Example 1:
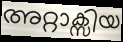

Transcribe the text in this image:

അറ്റാക്സിയ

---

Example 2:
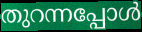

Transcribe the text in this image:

തുറന്നപ്പോൾ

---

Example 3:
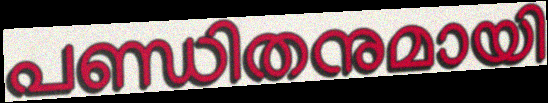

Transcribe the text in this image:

പണ്ഡിതനുമായി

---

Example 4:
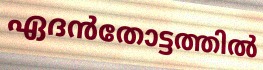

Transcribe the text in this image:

ഏദൻതോട്ടത്തിൽ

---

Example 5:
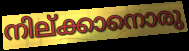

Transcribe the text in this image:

നില്ക്കാനൊരു